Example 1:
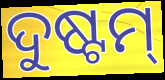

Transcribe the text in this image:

ଦୁଷ୍ଟମ୍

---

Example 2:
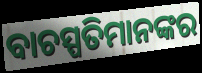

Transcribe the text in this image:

ବାଚସ୍ପତିମାନଙ୍କର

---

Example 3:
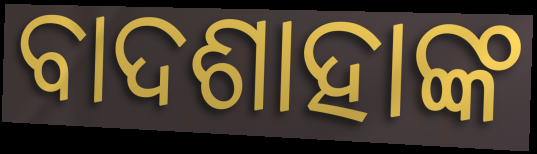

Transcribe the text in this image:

ବାଦଶାହାଙ୍କ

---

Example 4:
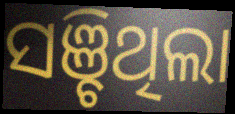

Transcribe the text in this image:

ସଞ୍ଚିଥିଲା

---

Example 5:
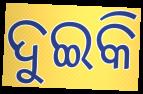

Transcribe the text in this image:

ଦୁଇକି